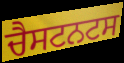
ਚੈਸਟਨਟਸ